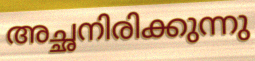
അച്ഛനിരിക്കുന്നു